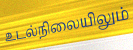
உடல்நிலையிலும்